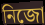
নিজো